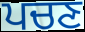
ਪਚਣ